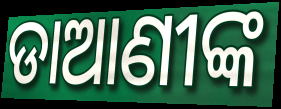
ଡାଆଣୀଙ୍କ